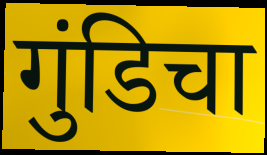
गुंडिचा